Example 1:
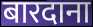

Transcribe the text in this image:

बारदाना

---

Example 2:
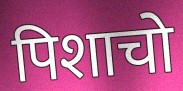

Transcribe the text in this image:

पिशाचो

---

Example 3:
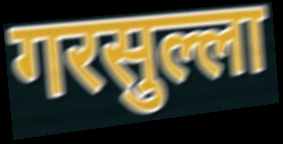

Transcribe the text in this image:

गरसुल्ला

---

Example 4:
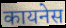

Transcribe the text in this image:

कायनेस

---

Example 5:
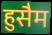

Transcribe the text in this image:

हुसैम